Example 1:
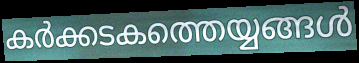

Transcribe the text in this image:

കർക്കടകത്തെയ്യങ്ങൾ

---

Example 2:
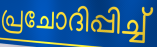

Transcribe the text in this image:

പ്രചോദിപ്പിച്ച്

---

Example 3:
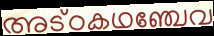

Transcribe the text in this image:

അട്ഠകഥഞ്ചേവ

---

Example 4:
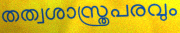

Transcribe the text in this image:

തത്വശാസ്ത്രപരവും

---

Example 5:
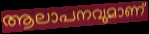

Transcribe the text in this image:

ആലാപനവുമാണ്